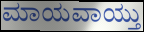
ಮಾಯವಾಯ್ತು